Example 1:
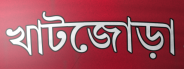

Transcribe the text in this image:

খাটজোড়া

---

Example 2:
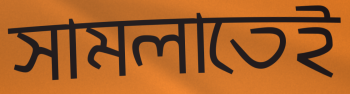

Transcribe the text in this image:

সামলাতেই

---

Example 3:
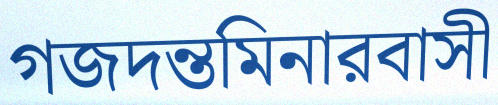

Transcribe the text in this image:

গজদন্তমিনারবাসী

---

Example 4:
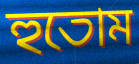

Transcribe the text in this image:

হুতোম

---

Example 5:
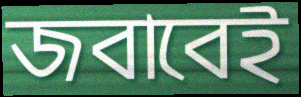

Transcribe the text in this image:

জবাবেই